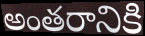
అంతరానికి